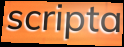
scripta